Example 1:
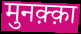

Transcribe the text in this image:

मुनक़्क़ा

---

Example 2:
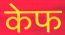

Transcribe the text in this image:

केफ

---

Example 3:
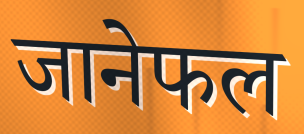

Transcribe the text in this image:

जानेफल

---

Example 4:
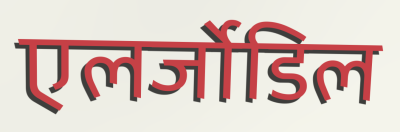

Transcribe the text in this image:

एलर्जोडिल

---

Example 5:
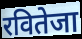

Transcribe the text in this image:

रवितेजा